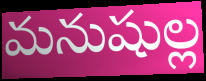
మనుషుల్ల